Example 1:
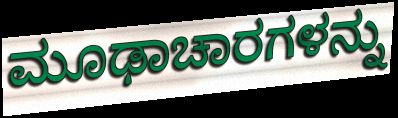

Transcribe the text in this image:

ಮೂಢಾಚಾರಗಳನ್ನು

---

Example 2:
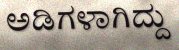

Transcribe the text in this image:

ಅಡಿಗಳಾಗಿದ್ದು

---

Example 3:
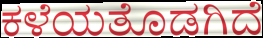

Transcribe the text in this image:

ಕಳೆಯತೊಡಗಿದೆ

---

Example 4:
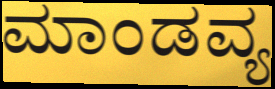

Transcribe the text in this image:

ಮಾಂಡವ್ಯ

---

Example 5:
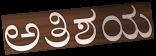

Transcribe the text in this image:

ಅತಿಶಯ